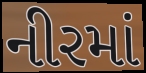
નીરમાં